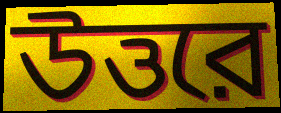
উত্তরে